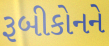
રૂબીકોનને